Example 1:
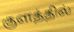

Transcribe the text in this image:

குளத்தில்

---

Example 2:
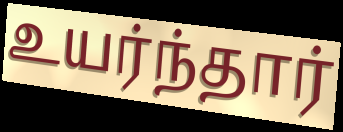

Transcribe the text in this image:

உயர்ந்தார்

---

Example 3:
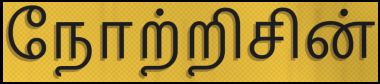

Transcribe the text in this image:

நோற்றிசின்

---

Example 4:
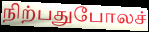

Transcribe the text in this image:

நிற்பதுபோலச்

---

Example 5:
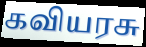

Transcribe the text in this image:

கவியரசு